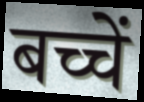
बच्चें